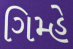
ગિમ્હે